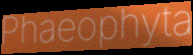
Phaeophyta